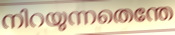
നിറയുന്നതെന്തേ